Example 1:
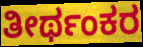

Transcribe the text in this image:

ತೀರ್ಥಂಕರ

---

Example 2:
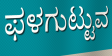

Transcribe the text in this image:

ಫಳಗುಟ್ಟುವ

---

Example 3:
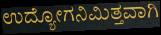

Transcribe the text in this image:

ಉದ್ಯೋಗನಿಮಿತ್ತವಾಗಿ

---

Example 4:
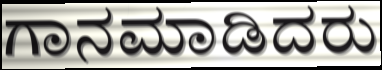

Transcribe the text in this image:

ಗಾನಮಾಡಿದರು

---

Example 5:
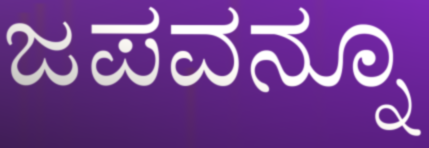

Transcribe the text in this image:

ಜಪವನ್ನೂ